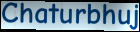
Chaturbhuj